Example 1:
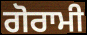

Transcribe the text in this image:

ਗੋਰਾਮੀ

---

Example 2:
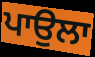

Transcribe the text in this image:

ਪਾਉਲਾ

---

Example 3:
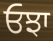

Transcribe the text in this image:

ਓਝਾ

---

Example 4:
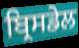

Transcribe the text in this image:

ਬ੍ਰਿਸਡੇਲ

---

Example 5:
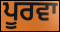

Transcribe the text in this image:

ਪੂਰਵਾ